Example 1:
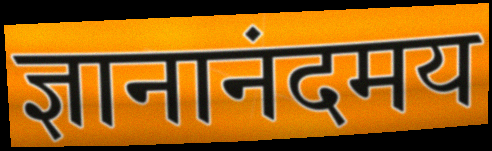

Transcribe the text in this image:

ज्ञानानंदमय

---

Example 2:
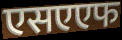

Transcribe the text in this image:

एसएएफ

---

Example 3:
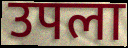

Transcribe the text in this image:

उपला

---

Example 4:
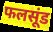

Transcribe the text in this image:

फलसूंड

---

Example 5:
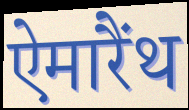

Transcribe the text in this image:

ऐमारैंथ